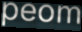
peom